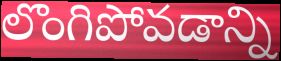
లొంగిపోవడాన్ని